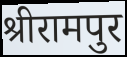
श्रीरामपुर